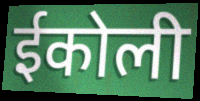
ईकोली